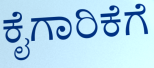
ಕೈಗಾರಿಕೆಗೆ